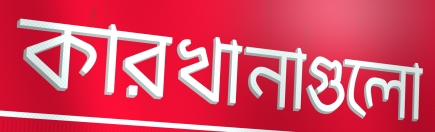
কারখানাগুলো